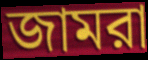
জামরা